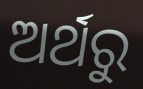
ଅର୍ଥରୁ